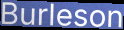
Burleson